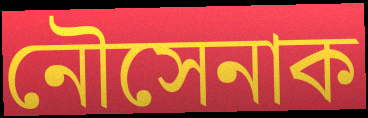
নৌসেনাক